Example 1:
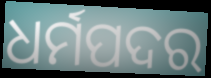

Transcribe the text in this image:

ଧର୍ମପଦର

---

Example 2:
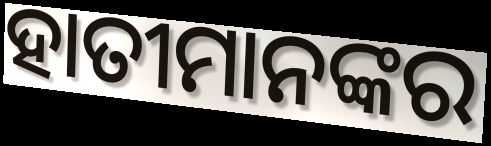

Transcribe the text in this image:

ହାତୀମାନଙ୍କର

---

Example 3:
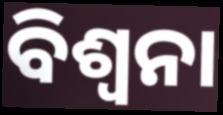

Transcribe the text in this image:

ବିଶ୍ୱନା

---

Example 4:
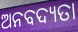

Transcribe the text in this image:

ଅନବଦ୍ୟତା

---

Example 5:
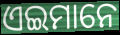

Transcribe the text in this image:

ଏଇମାନେ